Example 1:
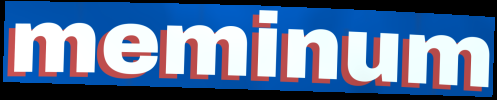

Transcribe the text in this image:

meminum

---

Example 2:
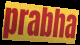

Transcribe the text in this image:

prabha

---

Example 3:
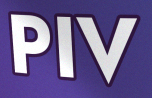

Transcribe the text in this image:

PIV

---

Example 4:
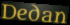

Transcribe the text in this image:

Dedan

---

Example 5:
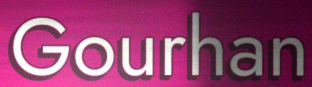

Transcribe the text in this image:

Gourhan